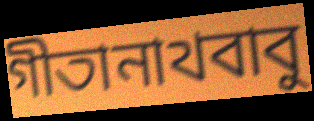
গীতানাথবাবু